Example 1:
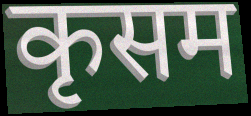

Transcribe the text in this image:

कृसम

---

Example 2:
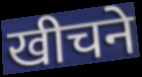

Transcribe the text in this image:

खीचने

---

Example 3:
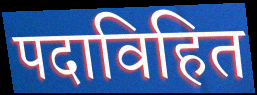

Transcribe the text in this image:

पदाविहित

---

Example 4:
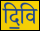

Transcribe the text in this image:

दि॒वि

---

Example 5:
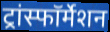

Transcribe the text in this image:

ट्रांस्फॉर्मेशन